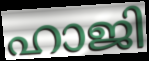
ഹാജി